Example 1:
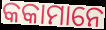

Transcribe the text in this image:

କକାମାନେ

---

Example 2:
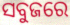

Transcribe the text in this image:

ସବୁଜରେ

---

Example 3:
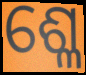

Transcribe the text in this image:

ଶ୍ଳେ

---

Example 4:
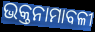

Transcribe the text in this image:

ଭକ୍ତନାମାବଳୀ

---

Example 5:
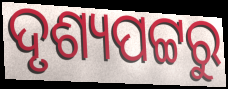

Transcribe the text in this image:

ଦୃଶ୍ୟପଟ୍ଟରୁ